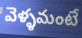
వెళ్ళమంటే